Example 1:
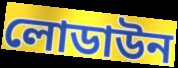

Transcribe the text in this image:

লোডাউন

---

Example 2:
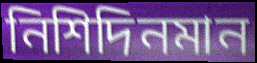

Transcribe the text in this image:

নিশিদিনমান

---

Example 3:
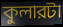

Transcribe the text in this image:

কুলারটা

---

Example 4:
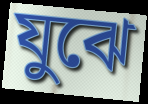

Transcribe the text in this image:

যুঝে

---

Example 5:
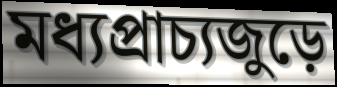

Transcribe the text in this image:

মধ্যপ্রাচ্যজুড়ে